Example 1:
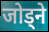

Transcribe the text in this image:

जोड्ने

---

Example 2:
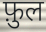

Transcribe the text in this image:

फ़ुल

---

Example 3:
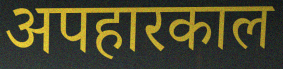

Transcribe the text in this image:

अपहारकाल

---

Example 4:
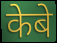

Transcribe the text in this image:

केबे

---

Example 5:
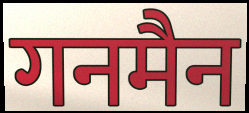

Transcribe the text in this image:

गनमैन